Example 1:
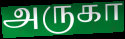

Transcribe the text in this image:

அருகா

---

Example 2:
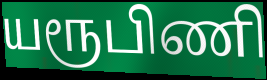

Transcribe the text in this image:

யரூபிணி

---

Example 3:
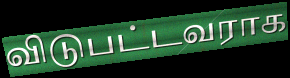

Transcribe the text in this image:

விடுபட்டவராக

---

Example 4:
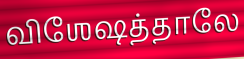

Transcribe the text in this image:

விஶேஷத்தாலே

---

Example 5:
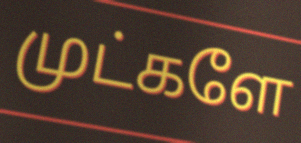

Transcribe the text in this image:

முட்களே